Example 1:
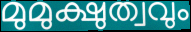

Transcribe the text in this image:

മുമുക്ഷുത്വവും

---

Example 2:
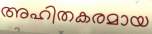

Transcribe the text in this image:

അഹിതകരമായ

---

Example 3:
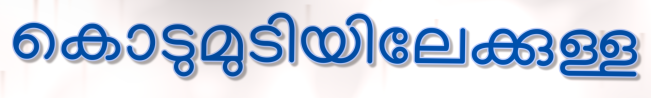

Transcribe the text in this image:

കൊടുമുടിയിലേക്കുള്ള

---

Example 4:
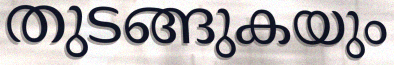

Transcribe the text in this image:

തുടങ്ങുകയും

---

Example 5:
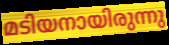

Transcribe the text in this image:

മടിയനായിരുന്നു